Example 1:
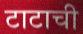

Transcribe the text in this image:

टाटाची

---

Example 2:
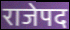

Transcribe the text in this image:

राजेपद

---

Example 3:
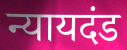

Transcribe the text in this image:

न्यायदंड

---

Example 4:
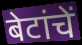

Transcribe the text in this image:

बेटांचें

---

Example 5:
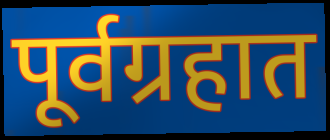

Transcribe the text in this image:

पूर्वग्रहात